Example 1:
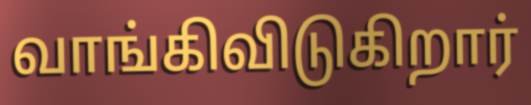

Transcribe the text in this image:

வாங்கிவிடுகிறார்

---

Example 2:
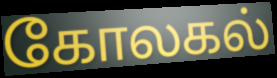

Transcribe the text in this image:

கோலகல்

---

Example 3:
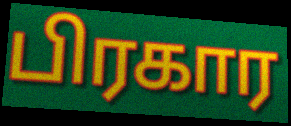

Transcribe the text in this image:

பிரகார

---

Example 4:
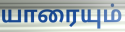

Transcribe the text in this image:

யாரையும்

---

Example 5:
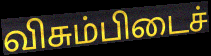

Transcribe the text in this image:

விசும்பிடைச்